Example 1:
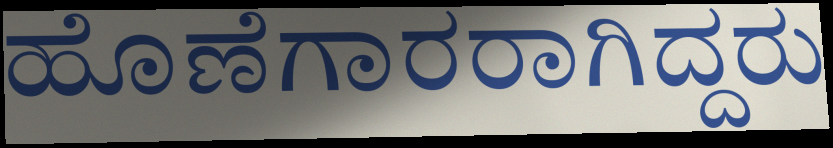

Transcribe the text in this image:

ಹೊಣೆಗಾರರಾಗಿದ್ದರು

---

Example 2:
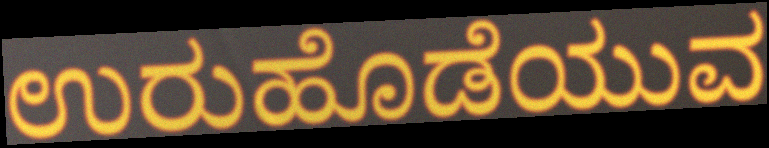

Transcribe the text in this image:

ಉರುಹೊಡೆಯುವ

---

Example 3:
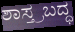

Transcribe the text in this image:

ಶಾಸ್ತ್ರಬದ್ಧ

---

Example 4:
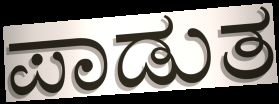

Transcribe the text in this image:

ಪಾಡುತ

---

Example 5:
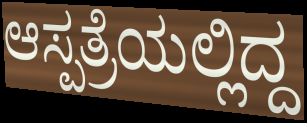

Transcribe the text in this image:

ಆಸ್ಪತ್ರೆಯಲ್ಲಿದ್ದ